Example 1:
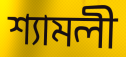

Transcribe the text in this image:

শ্যামলী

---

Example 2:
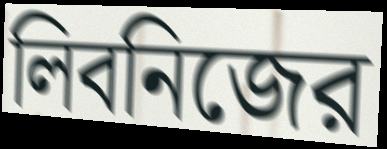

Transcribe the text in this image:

লিবনিজের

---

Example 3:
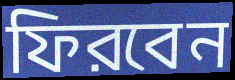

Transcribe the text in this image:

ফিরবেন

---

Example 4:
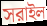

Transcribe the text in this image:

সরাইল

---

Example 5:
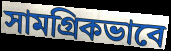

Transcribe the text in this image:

সামগ্রিকভাবে